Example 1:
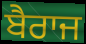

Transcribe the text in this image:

ਬੈਰਾਜ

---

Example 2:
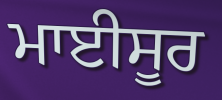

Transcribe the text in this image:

ਮਾਈਸੂਰ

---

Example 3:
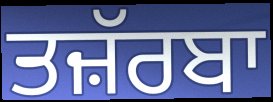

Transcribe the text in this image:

ਤਜ਼ੱਰਬਾ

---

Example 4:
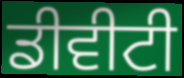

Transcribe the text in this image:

ਡੀਵੀਟੀ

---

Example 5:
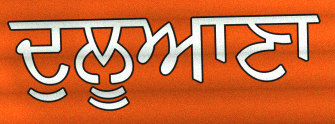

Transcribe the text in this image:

ਦੁਲੂਆਣਾ